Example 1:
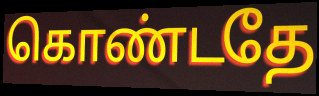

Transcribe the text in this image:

கொண்டதே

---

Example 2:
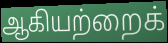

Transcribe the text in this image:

ஆகியற்றைக்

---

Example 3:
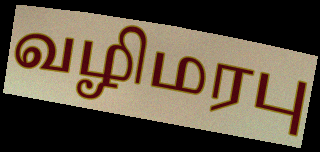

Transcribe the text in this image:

வழிமரபு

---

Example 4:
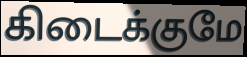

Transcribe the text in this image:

கிடைக்குமே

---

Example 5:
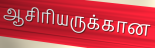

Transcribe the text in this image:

ஆசிரியருக்கான